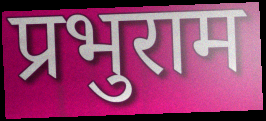
प्रभुराम